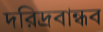
দরিদ্রবান্ধব